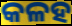
କଳହ